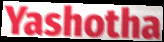
Yashotha